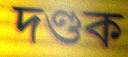
দণ্ডক